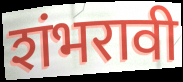
शंभरावी